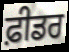
ਫ਼ੀਡਰ